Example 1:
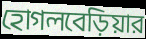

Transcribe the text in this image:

হোগলবেড়িয়ার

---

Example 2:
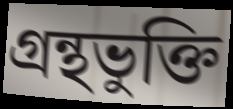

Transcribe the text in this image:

গ্রন্থভুক্তি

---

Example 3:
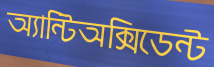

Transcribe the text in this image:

অ্যান্টিঅক্সিডেন্ট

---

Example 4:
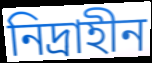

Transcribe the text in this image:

নিদ্রাহীন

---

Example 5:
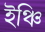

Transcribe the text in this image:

ইঞ্চি